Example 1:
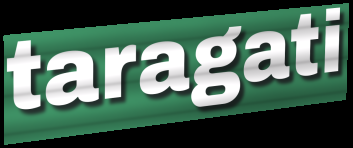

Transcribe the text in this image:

taragati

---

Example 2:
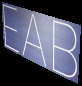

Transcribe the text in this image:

EAB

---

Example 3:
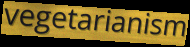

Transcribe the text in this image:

vegetarianism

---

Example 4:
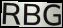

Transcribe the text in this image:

RBG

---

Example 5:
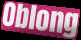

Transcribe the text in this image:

Oblong